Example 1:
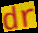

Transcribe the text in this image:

dr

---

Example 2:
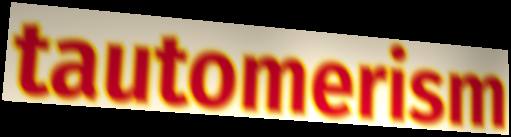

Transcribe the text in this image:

tautomerism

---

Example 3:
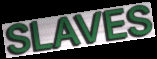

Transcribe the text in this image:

SLAVES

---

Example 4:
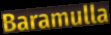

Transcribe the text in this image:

Baramulla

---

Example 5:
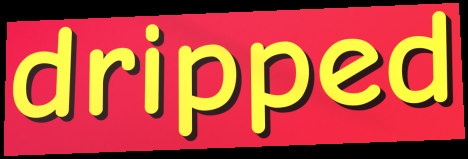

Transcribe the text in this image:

dripped